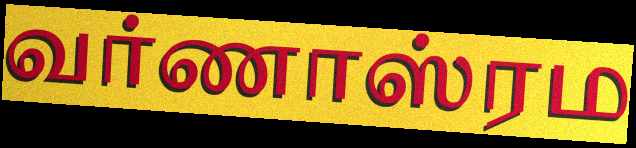
வர்ணாஸ்ரம